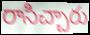
రాసిచ్చారు